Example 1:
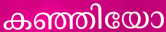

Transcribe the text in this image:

കഞ്ഞിയോ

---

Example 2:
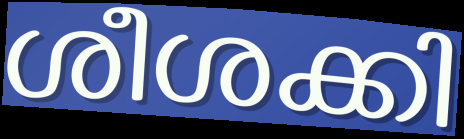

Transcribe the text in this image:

ശീശക്കി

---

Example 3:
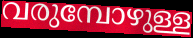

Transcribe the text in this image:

വരുമ്പോഴുള്ള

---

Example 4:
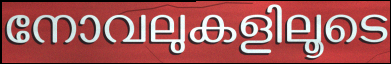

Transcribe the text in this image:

നോവലുകളിലൂടെ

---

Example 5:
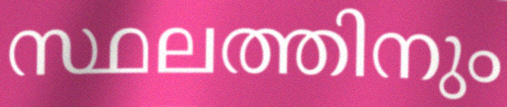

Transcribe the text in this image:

സ്ഥലത്തിനും